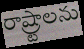
రాష్ర్టాలను